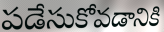
పడేసుకోవడానికి